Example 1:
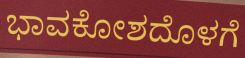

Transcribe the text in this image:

ಭಾವಕೋಶದೊಳಗೆ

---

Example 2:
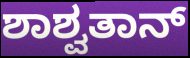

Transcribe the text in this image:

ಶಾಶ್ವತಾನ್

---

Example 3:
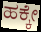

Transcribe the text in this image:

ಹಕ್ಕೇ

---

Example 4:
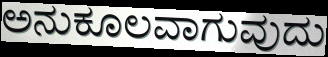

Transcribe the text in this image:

ಅನುಕೂಲವಾಗುವುದು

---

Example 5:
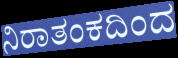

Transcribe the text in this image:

ನಿರಾತಂಕದಿಂದ